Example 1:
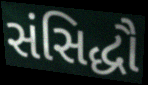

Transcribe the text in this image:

સંસિદ્ધૌ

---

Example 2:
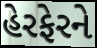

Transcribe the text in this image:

હેરફેરને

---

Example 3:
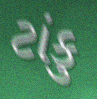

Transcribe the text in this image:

ટાંકુ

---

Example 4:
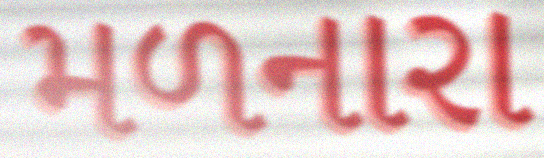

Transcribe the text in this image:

મળનારા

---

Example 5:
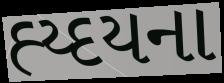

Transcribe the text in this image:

હ્ય્દયના